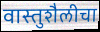
वास्तुशैलीचा